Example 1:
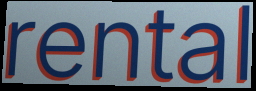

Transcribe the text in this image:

rental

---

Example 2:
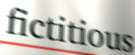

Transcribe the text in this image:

fictitious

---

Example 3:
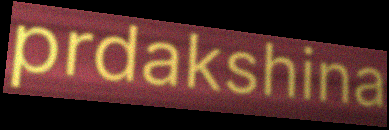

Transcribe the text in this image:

prdakshina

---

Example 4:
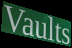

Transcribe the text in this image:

Vaults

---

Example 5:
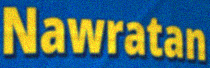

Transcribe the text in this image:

Nawratan